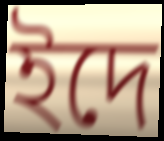
ইদে